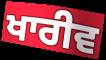
ਖਾਰੀਵ